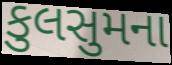
કુલસુમના